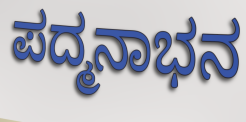
ಪದ್ಮನಾಭನ